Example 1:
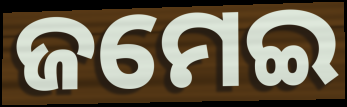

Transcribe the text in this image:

ଜମେଇ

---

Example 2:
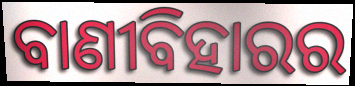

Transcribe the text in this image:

ବାଣୀବିହାରର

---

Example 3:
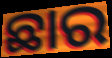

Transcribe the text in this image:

ଛାର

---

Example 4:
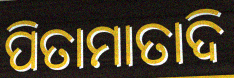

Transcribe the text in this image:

ପିତାମାତାଦି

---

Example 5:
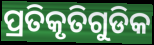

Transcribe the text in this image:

ପ୍ରତିକୃତିଗୁଡିକ